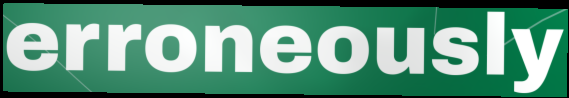
erroneously